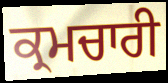
ਕ੍ਰਮਚਾਰੀ